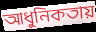
আধুনিকতায়